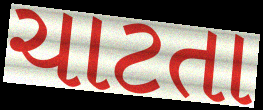
ચાટતા